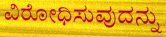
ವಿರೋಧಿಸುವುದನ್ನು